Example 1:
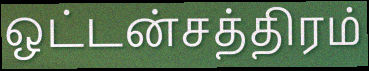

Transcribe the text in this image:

ஒட்டன்சத்திரம்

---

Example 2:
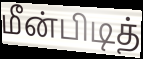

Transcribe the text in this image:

மீன்பிடித்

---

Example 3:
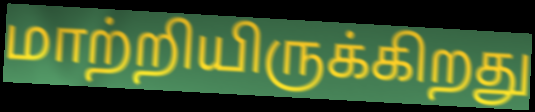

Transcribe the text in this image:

மாற்றியிருக்கிறது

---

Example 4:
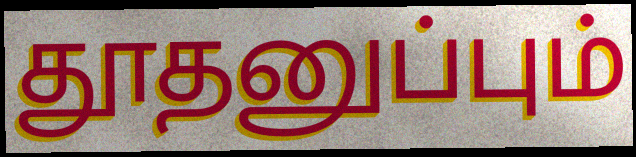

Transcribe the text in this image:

தூதனுப்பும்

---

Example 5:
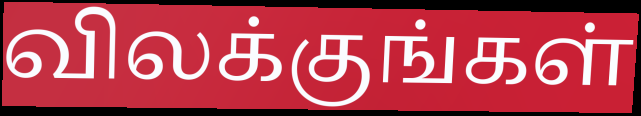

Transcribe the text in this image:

விலக்குங்கள்